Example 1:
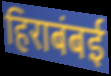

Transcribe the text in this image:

हिराबंबई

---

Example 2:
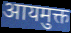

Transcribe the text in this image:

आयमुक्त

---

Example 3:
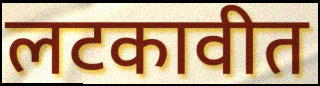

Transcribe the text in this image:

लटकावीत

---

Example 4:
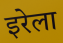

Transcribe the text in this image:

इरेला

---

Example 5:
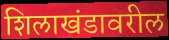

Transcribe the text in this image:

शिलाखंडावरील